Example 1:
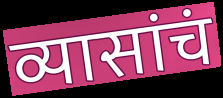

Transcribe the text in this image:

व्यासांचं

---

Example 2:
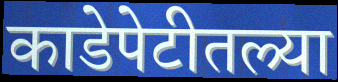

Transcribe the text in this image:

काडेपेटीतल्या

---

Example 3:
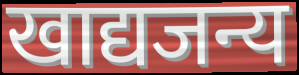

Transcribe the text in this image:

खाद्यजन्य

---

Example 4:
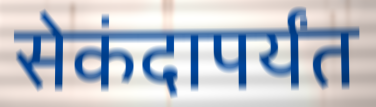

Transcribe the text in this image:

सेकंदापर्यंत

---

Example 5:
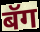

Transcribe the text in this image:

बॅग